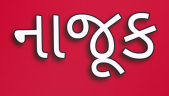
નાજૂક